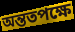
অন্ততপক্ষে